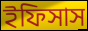
ইফিসাস